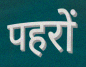
पहरों